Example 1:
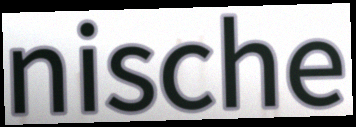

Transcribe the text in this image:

nische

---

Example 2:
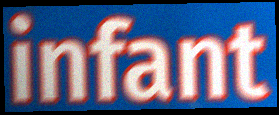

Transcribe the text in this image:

infant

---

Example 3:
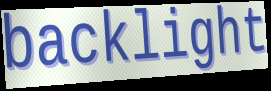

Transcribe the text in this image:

backlight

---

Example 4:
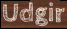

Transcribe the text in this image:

Udgir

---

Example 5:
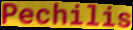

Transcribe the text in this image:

Pechilis